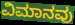
ವಿಮಾನವು